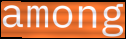
among